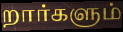
றார்களும்